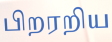
பிறரறிய